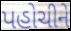
પહોચીને